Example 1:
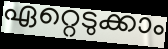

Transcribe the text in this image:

ഏറ്റെടുക്കാം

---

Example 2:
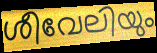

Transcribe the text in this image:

ശീവേലിയും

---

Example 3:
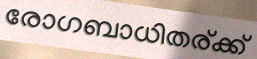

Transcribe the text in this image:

രോഗബാധിതര്ക്ക്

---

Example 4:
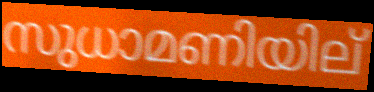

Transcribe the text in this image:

സുധാമണിയില്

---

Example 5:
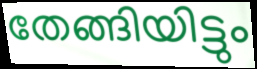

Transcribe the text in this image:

തേങ്ങിയിട്ടും